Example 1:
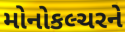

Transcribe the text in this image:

મોનોકલ્ચરને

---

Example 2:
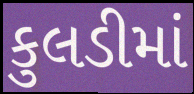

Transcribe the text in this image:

કુલડીમાં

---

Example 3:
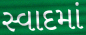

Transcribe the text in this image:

સ્વાદમાં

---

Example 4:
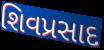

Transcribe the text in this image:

શિવપ્રસાદ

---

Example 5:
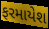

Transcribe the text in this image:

ફરમાયેશ